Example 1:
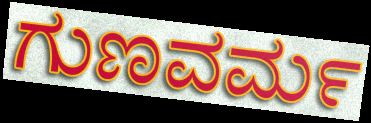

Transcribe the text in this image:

ಗುಣವರ್ಮ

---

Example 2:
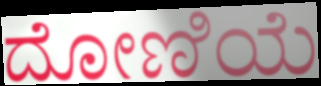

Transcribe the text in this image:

ದೋಣಿಯೆ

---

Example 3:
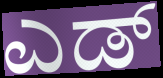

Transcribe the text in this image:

ಎಡ್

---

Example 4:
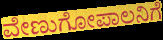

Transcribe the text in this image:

ವೇಣುಗೋಪಾಲನಿಗೆ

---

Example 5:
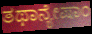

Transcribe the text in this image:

ತಥಾನ್ಯೇಷಾಂ